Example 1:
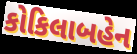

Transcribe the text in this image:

કોકિલાબહેન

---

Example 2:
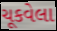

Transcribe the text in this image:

ચૂકવેલા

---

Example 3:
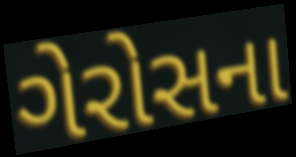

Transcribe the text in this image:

ગેરોસના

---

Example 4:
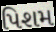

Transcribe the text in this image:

પિશમ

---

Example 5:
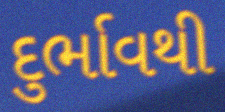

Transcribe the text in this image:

દુર્ભાવથી